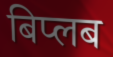
बिप्लब